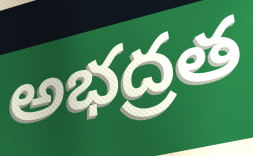
అభద్రత